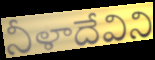
నీళాదేవిని